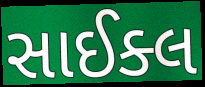
સાઈક્લ